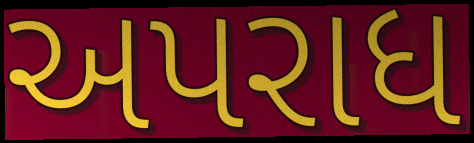
અપરાધ